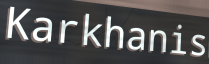
Karkhanis